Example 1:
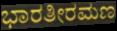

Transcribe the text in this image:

ಭಾರತೀರಮಣ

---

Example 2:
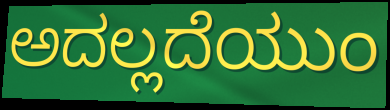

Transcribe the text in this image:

ಅದಲ್ಲದೆಯುಂ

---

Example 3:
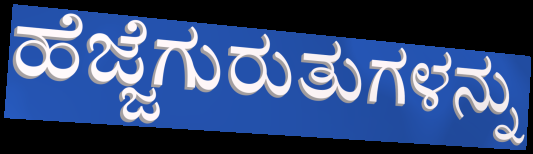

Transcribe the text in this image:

ಹೆಜ್ಜೆಗುರುತುಗಳನ್ನು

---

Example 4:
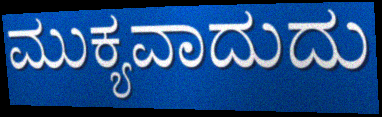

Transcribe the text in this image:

ಮುಕ್ಯವಾದುದು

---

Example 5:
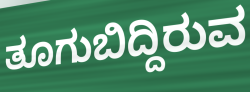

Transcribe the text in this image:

ತೂಗುಬಿದ್ದಿರುವ